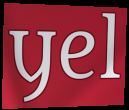
yel